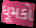
ધૂમકો